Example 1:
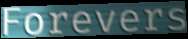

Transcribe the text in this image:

Forevers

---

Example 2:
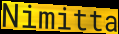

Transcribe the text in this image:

Nimitta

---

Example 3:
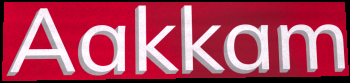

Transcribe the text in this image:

Aakkam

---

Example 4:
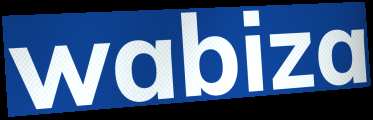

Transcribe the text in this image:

wabiza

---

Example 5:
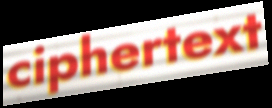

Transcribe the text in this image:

ciphertext